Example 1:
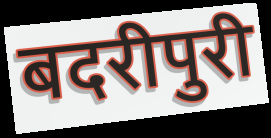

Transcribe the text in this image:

बदरीपुरी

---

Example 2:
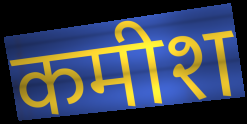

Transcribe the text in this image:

कमीश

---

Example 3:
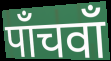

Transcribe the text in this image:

पाँचवाँ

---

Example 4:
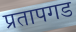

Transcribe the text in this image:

प्रतापगड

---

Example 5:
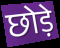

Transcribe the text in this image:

छोड़े